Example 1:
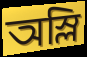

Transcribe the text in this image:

অস্লি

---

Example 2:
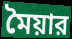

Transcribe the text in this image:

মৈয়ার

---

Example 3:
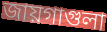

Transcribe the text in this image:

জায়গাগুলা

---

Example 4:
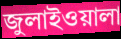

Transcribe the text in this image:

জুলাইওয়ালা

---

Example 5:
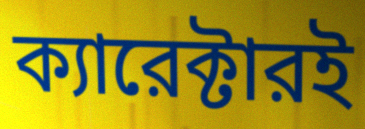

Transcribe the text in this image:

ক্যারেক্টারই